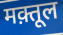
मक़्तूल